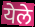
येले